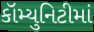
કૉમ્યુનિટીમાં